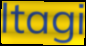
Itagi